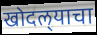
खोदल्याचा